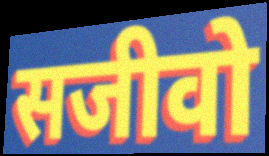
सजीवो